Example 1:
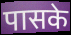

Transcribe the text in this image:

पासके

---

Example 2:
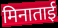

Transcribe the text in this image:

मिनाताई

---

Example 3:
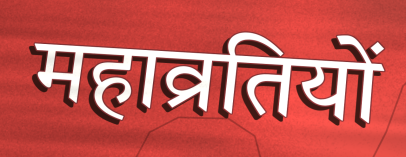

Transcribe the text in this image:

महाव्रतियों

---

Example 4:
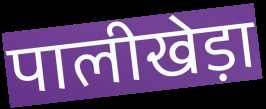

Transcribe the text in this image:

पालीखेड़ा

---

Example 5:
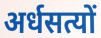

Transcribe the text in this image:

अर्धसत्यों